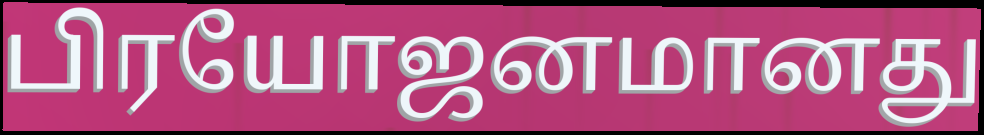
பிரயோஜனமானது